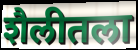
शैलीतला